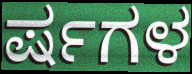
ರ್ಷಗಳ